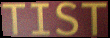
TIST